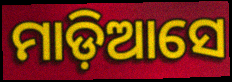
ମାଡ଼ିଆସେ